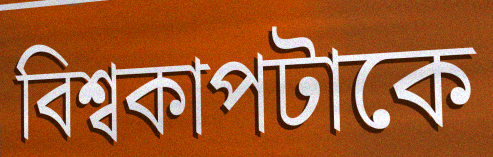
বিশ্বকাপটাকে